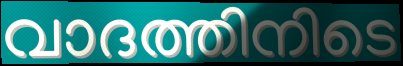
വാദത്തിനിടെ